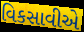
વિકસાવીએ